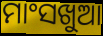
ମାଂସଖୁଆ